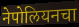
नेपोलियनचा